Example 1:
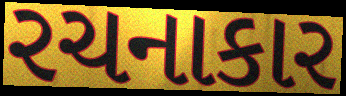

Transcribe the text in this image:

રચનાકાર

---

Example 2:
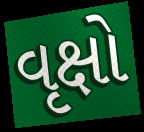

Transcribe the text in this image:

વૃક્ષો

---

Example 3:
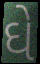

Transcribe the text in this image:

ઘે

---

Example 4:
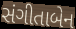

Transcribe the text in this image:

સંગીતાબેન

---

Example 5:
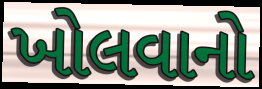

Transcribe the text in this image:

ખોલવાનો